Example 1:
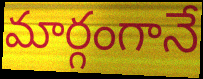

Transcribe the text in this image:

మార్గంగానే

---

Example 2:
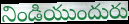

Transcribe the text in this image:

నిండియుందురు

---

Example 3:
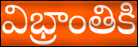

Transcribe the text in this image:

విభ్రాంతికి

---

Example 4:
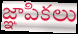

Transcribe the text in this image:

జ్ఞాపికలు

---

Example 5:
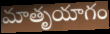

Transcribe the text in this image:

మాతృయాగం